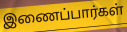
இணைப்பார்கள்